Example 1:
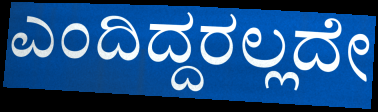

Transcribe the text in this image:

ಎಂದಿದ್ದರಲ್ಲದೇ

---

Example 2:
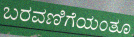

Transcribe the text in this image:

ಬರವಣಿಗೆಯಂತೂ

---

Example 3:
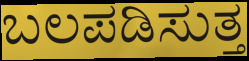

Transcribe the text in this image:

ಬಲಪಡಿಸುತ್ತ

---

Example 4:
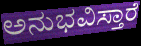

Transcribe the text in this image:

ಅನುಭವಿಸ್ತಾರೆ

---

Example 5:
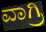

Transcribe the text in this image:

ವಾಗ್ರಿ